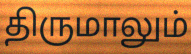
திருமாலும்